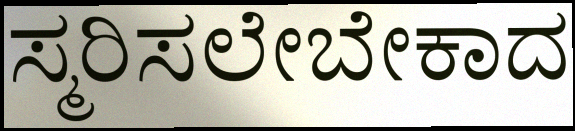
ಸ್ಮರಿಸಲೇಬೇಕಾದ